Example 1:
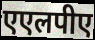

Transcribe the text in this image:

एएलपीए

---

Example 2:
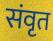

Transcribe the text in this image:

संवृत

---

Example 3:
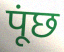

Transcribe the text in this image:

पूंछ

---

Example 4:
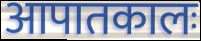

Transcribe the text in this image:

आपातकालः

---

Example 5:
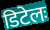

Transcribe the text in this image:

डिटेलः